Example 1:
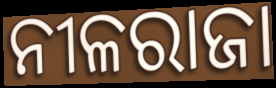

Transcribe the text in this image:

ନୀଳରାଜା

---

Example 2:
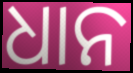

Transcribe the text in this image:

ଧାନ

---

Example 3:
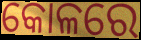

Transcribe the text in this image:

କୋଳରେ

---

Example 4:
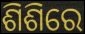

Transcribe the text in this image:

ଶିଶିରେ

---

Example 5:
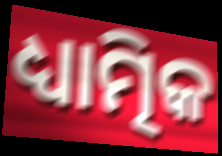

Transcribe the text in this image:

ଧ୍ୟାତ୍ମିକ